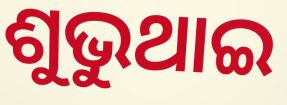
ଶୁଭୁଥାଇ